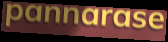
pannarase